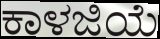
ಕಾಳಜಿಯೆ